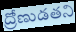
ద్రోణుడతని